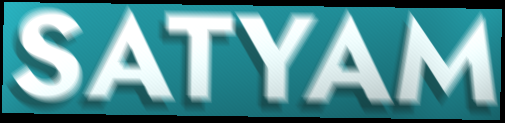
SATYAM